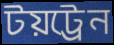
টয়ট্রেন